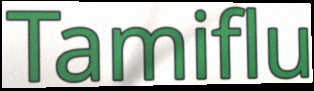
Tamiflu